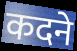
कदने